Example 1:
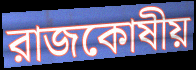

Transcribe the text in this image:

রাজকোষীয়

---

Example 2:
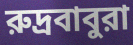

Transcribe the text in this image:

রুদ্রবাবুরা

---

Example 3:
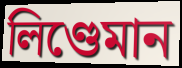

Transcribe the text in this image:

লিণ্ডেমান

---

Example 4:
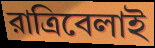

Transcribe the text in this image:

রাত্রিবেলাই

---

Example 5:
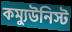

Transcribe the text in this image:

কম্যুউনিস্ট